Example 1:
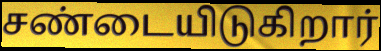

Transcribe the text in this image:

சண்டையிடுகிறார்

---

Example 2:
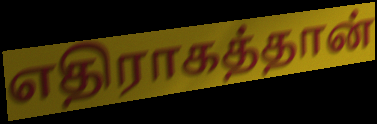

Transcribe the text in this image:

எதிராகத்தான்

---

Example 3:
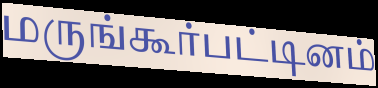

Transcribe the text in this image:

மருங்கூர்பட்டினம்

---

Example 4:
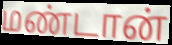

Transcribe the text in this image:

மண்டான்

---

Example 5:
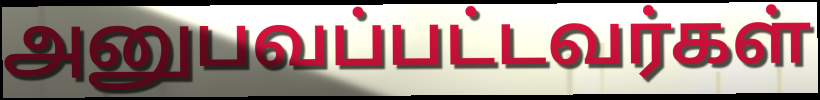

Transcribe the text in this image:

அனுபவப்பட்டவர்கள்